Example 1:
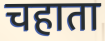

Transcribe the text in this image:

चहाता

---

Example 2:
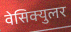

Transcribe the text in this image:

वेसिक्युलर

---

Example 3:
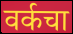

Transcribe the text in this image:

वर्कचा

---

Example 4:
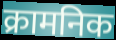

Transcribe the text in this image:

क्रामनिक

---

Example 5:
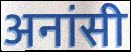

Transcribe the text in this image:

अनांसी